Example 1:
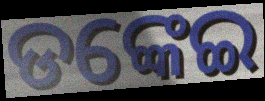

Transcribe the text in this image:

ଡଙ୍କେଇ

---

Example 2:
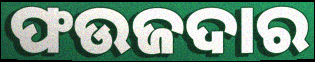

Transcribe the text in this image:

ଫଉଜଦାର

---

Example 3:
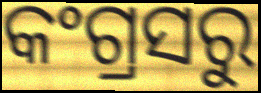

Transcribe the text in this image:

କଂଗ୍ରସରୁ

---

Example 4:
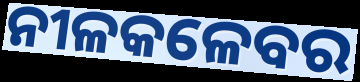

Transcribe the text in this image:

ନୀଳକଳେବର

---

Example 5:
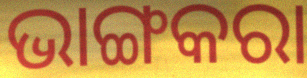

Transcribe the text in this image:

ଭାଙ୍ଗକରା